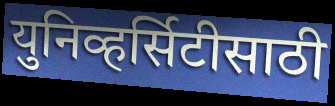
युनिव्हर्सिटीसाठी